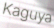
Kaguya